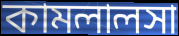
কামলালসা